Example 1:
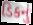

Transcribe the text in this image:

ડિકનું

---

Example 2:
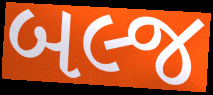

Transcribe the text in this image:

બલ્જ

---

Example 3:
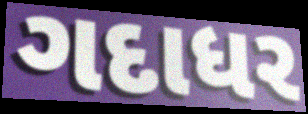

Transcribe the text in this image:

ગદાધર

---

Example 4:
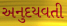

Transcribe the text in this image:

અનુદયવતી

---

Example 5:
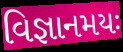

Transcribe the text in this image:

વિજ્ઞાનમયઃ